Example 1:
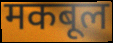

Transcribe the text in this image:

मकबूल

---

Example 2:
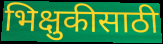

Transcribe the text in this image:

भिक्षुकीसाठी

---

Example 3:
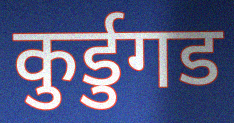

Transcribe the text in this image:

कुर्डुगड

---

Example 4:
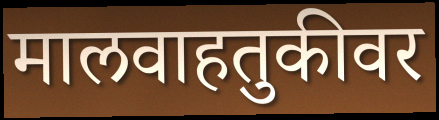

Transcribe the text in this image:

मालवाहतुकीवर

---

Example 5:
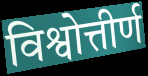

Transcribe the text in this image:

विश्वोत्तीर्ण